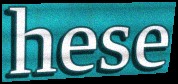
hese